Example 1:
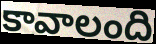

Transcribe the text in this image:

కావాలంది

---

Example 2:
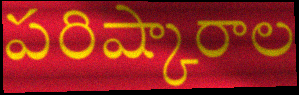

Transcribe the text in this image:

పరిష్కారాల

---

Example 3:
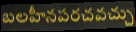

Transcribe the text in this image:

బలహీనపరచవచ్చు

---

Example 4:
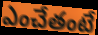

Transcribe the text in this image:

ఎంచేతంటే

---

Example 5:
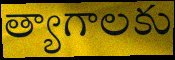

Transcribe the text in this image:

త్యాగాలకు